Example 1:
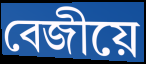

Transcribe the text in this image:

বেজীয়ে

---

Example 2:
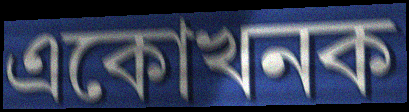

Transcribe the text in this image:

একোখনক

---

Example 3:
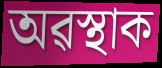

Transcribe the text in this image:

অৱস্থাক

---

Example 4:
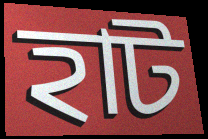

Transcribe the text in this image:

হাট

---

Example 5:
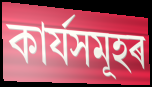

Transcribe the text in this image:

কাৰ্যসমূহৰ